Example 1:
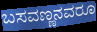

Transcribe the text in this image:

ಬಸವಣ್ಣನವರೂ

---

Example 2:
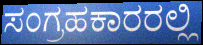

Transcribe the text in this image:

ಸಂಗ್ರಹಕಾರರಲ್ಲಿ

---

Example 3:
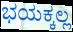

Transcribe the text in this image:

ಭಯಕ್ಕಲ್ಲ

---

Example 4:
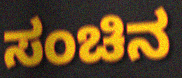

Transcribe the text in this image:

ಸಂಚಿನ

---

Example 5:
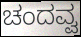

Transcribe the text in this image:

ಚಂದವ್ವ